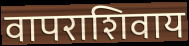
वापराशिवाय